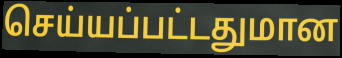
செய்யப்பட்டதுமான